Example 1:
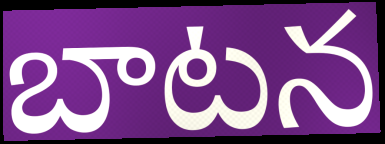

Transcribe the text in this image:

బాటన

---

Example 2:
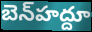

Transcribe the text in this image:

బెన్‍హద్దూ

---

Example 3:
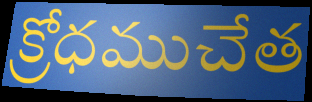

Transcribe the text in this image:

క్రోధముచేత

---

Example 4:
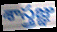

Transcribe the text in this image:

శాస్త్రజ్ఞు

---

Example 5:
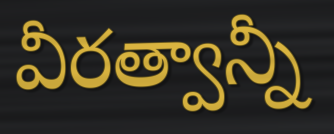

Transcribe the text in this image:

వీరత్వాన్నీ